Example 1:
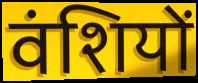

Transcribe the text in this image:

वंशियों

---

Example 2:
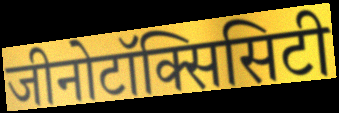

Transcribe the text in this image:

जीनोटॉक्सिसिटी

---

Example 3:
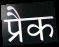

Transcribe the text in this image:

प्रैक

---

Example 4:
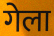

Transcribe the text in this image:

गेला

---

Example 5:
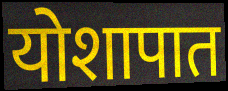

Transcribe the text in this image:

योशापात